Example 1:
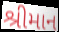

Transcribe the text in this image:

શ્રીમાન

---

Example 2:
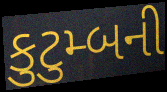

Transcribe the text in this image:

કુટુમ્બની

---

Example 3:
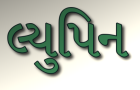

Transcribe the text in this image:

લ્યુપિન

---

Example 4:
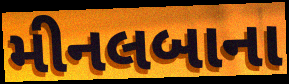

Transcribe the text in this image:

મીનલબાના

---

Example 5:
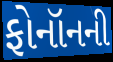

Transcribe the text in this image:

ફોનૉનની